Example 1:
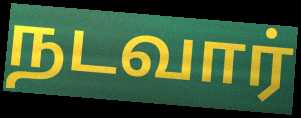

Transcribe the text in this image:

நடவார்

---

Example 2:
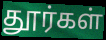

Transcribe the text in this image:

தூர்கள்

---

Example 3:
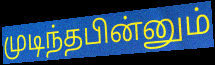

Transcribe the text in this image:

முடிந்தபின்னும்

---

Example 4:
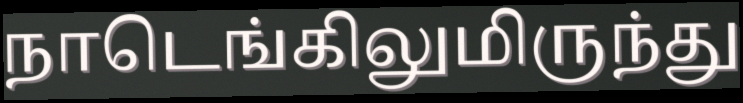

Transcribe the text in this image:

நாடெங்கிலுமிருந்து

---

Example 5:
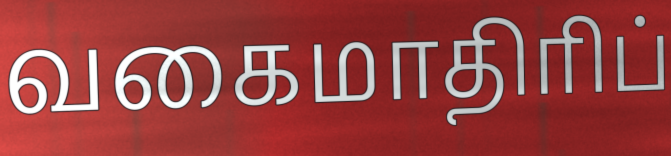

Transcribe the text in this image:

வகைமாதிரிப்